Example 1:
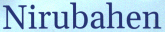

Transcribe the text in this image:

Nirubahen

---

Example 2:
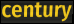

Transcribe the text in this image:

century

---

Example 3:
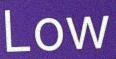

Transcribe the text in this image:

Low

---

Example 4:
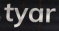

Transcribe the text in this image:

tyar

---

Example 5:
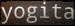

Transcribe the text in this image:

yogita